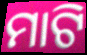
ମାଟି